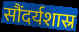
सौंदर्यशास्र